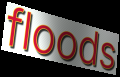
floods